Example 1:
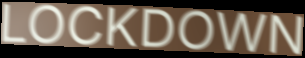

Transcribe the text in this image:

LOCKDOWN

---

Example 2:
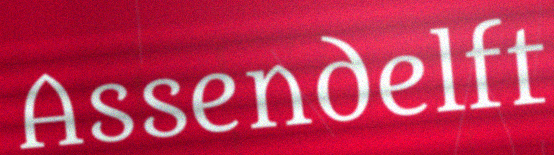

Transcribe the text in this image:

Assendelft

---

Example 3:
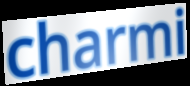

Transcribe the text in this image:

charmi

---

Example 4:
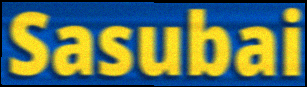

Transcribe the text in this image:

Sasubai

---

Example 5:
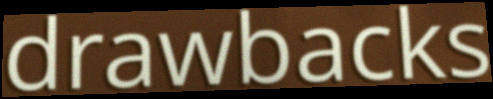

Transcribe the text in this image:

drawbacks